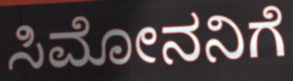
ಸಿಮೋನನಿಗೆ